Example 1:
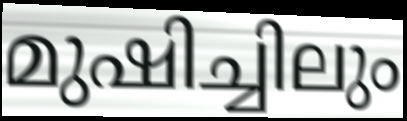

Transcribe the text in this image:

മുഷിച്ചിലും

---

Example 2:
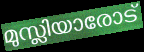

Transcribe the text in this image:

മുസ്ലിയാരോട്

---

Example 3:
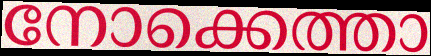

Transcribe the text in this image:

നോക്കെത്താ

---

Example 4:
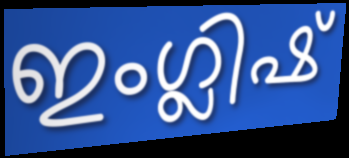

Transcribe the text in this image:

ഇംഗ്ലിഷ്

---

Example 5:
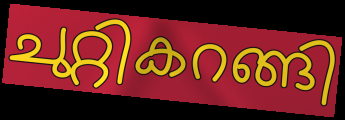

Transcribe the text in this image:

ചുറ്റികറങ്ങി